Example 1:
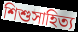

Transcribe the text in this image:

শিশুসাহিত্য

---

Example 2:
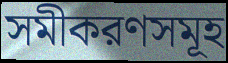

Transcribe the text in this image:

সমীকরণসমূহ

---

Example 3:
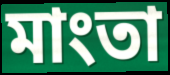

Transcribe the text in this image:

মাংতা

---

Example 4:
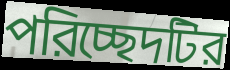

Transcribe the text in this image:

পরিচ্ছেদটির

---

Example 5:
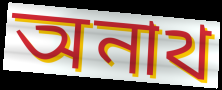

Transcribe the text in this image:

অনাথ